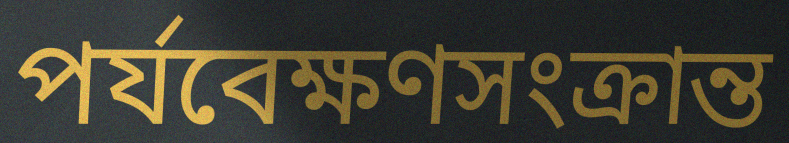
পর্যবেক্ষণসংক্রান্ত